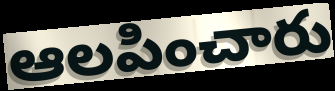
ఆలపించారు